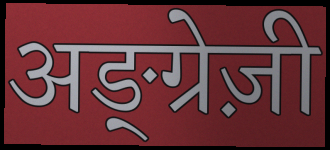
अङ्ग्रेज़ी